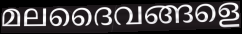
മലദൈവങ്ങളെ